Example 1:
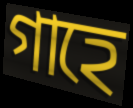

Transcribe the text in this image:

গাহে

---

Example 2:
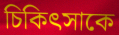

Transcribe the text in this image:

চিকিৎসাকে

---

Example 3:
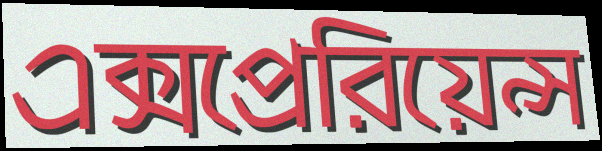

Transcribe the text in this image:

এক্সপ্রেরিয়েন্স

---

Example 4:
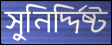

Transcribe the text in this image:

সুনির্দ্দিষ্ট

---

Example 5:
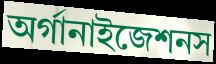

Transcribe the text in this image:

অর্গানাইজেশনস